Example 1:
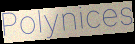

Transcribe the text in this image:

Polynices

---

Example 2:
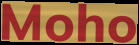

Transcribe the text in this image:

Moho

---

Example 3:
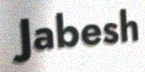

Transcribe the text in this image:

Jabesh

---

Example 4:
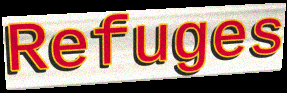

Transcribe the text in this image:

Refuges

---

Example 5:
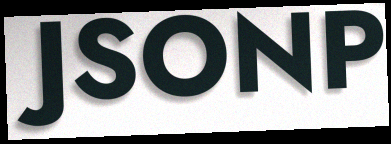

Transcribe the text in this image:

JSONP